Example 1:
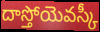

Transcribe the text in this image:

దాస్తోయెవస్కీ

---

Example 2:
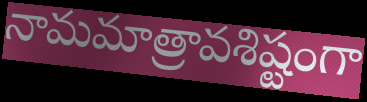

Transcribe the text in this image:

నామమాత్రావశిష్టంగా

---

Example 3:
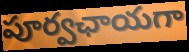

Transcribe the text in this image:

పూర్వఛాయగా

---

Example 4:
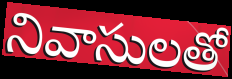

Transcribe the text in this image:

నివాసులతో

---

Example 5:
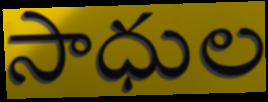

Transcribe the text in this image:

సాధుల